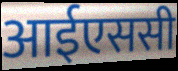
आईएससी